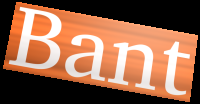
Bant